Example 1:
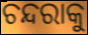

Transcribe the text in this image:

ଚନ୍ଦରାକୁ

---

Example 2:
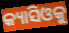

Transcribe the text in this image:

କ୍ୟାସିଓକୁ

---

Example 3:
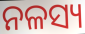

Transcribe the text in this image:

ନଳସ୍ୟ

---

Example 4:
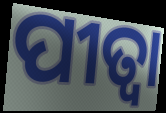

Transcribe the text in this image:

ପୀତ୍ବା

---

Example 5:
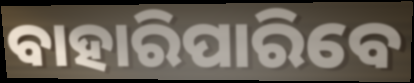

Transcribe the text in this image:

ବାହାରିପାରିବେ